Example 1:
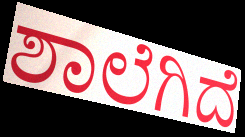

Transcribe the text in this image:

ಶಾಲೆಗಿದೆ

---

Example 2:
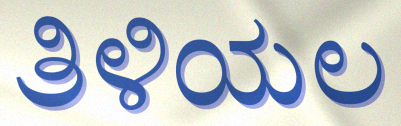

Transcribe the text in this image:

ತಿಳಿಯಲ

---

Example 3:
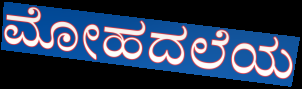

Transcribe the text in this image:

ಮೋಹದಲೆಯ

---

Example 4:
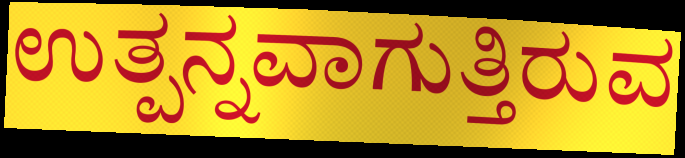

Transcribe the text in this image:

ಉತ್ಪನ್ನವಾಗುತ್ತಿರುವ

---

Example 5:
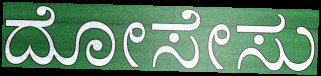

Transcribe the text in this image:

ದೋಸೇಸು